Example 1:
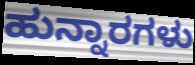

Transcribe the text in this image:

ಹುನ್ನಾರಗಳು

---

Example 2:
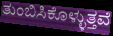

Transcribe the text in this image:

ತುಂಬಿಸಿಕೊಳ್ಳುತ್ತವೆ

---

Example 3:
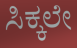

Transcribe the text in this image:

ಸಿಕ್ಕಲೇ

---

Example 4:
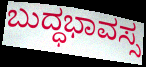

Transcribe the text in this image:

ಬುದ್ಧಭಾವಸ್ಸ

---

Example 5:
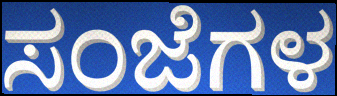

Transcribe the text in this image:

ಸಂಜೆಗಳ